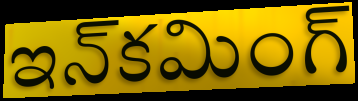
ఇన్‌కమింగ్